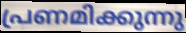
പ്രണമിക്കുന്നു